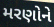
મરણોને